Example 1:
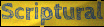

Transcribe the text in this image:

Scriptural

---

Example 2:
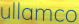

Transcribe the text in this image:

ullamco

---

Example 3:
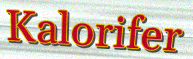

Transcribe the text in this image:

Kalorifer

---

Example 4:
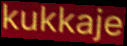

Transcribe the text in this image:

kukkaje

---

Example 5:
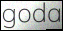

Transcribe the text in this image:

goda